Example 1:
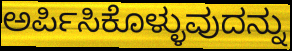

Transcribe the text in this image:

ಅರ್ಪಿಸಿಕೊಳ್ಳುವುದನ್ನು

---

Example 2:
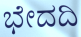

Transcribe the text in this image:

ಭೇದದಿ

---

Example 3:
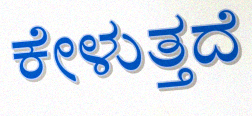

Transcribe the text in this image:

ಕೇಳುತ್ತದೆ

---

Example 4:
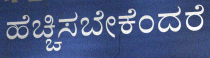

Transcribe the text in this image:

ಹೆಚ್ಚಿಸಬೇಕೆಂದರೆ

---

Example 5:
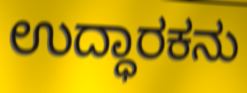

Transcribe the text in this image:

ಉದ್ಧಾರಕನು